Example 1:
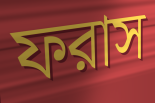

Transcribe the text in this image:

ফরাস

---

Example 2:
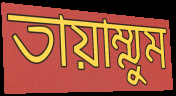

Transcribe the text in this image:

তায়াম্মুম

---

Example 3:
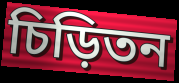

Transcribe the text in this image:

চিড়িতন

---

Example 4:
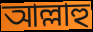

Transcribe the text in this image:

আল্লাহু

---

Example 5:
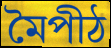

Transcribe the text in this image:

মৈপীঠ